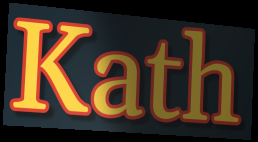
Kath